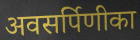
अवसर्पिणीका